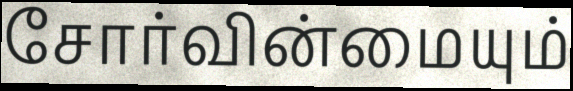
சோர்வின்மையும்